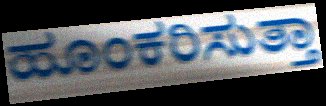
ಹೂಂಕರಿಸುತ್ತಾ